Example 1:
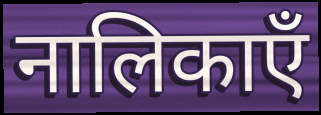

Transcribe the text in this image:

नालिकाएँ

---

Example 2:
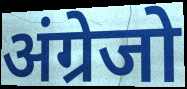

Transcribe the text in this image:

अंग्रेजो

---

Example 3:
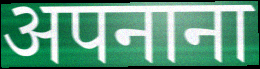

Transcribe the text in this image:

अपनाना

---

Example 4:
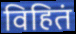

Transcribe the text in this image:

विहितं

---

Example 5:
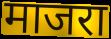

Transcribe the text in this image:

माजरा